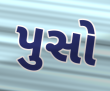
પુસો